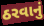
ઠરવાનું